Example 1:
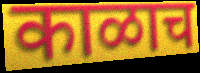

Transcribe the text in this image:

काळाच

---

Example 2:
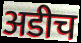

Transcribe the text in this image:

अडीच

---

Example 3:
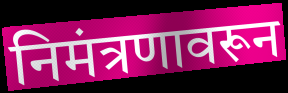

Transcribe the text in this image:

निमंत्रणावरून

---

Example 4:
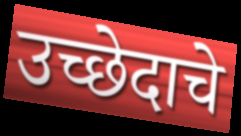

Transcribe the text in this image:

उच्छेदाचे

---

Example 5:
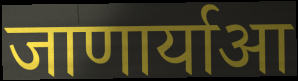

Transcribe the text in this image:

जाणार्याआ